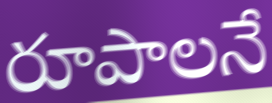
రూపాలనే